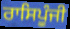
ਰਾਸਿਪੂੰਜੀ